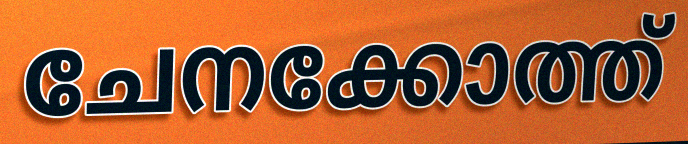
ചേനക്കോത്ത്